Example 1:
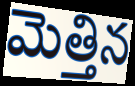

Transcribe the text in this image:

మెత్తిన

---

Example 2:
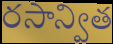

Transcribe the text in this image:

రసాన్విత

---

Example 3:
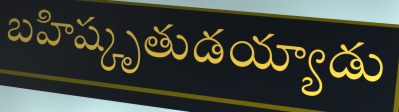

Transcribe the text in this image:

బహిష్కృతుడయ్యాడు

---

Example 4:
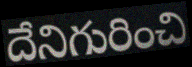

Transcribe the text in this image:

దేనిగురించి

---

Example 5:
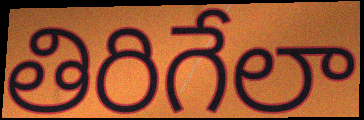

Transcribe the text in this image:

తిరిగేలా